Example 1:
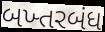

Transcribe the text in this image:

બખ્તરબંધ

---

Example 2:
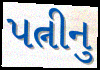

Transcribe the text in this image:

પત્નીનુ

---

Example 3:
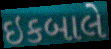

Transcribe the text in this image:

ઇકબાલે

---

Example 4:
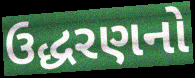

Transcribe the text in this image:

ઉદ્ધરણનો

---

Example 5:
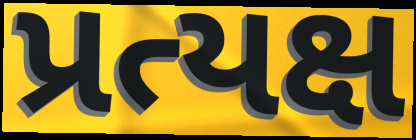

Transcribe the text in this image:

પ્રત્યક્ષ